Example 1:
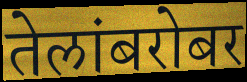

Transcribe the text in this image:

तेलांबरोबर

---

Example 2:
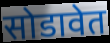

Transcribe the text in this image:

सोडावेत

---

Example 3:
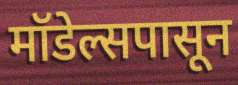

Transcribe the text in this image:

मॉडेल्सपासून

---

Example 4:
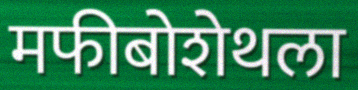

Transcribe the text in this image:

मफीबोशेथला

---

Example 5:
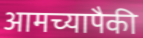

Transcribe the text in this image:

आमच्यापैकी